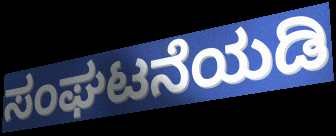
ಸಂಘಟನೆಯಡಿ